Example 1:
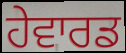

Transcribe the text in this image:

ਹੇਵਾਰਡ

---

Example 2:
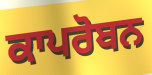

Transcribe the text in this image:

ਕਾਪਰੋਬਨ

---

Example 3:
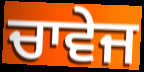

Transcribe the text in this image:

ਚਾਵੇਜ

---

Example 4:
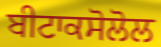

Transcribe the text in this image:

ਬੀਟਾਕਸੋਲੋਲ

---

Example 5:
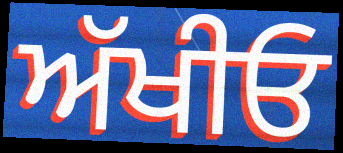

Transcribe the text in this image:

ਅੱਖੀਓ